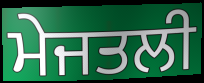
ਮੇਜਤਲੀ